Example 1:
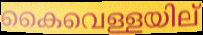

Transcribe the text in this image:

കൈവെള്ളയില്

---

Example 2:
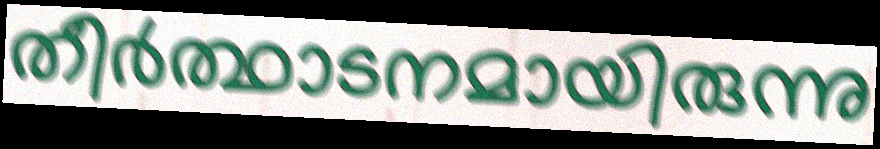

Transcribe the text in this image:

തീർത്ഥാടനമായിരുന്നു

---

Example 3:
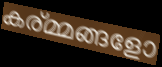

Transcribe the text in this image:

കര്മ്മങ്ങളോ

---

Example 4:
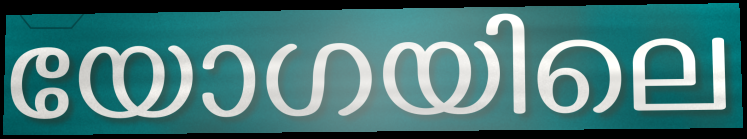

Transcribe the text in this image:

യോഗയിലെ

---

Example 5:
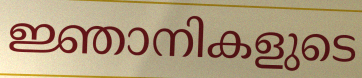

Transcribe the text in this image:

ജ്ഞാനികളുടെ